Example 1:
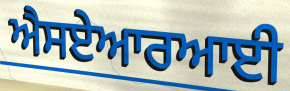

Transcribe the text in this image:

ਐਸਏਆਰਆਈ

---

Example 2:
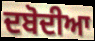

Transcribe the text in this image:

ਦਬੋਦੀਆ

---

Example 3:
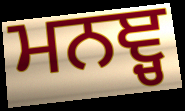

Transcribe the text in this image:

ਮਨਞ੍ਚ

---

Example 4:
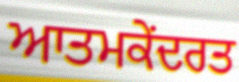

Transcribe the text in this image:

ਆਤਮਕੇਂਦਰਤ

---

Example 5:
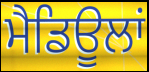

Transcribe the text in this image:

ਮੈਡਿਊਲਾਂ